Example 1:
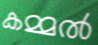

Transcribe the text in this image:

കമ്മൽ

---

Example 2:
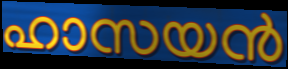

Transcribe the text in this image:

ഹാസയൻ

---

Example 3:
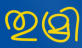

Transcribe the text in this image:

തുമ്രി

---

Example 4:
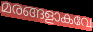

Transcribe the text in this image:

മരങ്ങളാകവേ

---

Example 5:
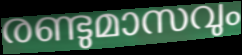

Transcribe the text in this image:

രണ്ടുമാസവും